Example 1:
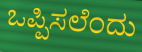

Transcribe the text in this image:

ಒಪ್ಪಿಸಲೆಂದು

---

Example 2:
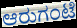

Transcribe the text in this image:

ಆರುಗಂಟೆ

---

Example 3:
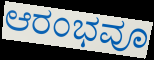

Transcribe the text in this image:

ಆರಂಭವೂ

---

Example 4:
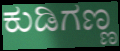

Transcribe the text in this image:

ಕುಡಿಗಣ್ಣ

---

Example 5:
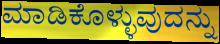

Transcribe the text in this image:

ಮಾಡಿಕೊಳ್ಳುವುದನ್ನು